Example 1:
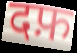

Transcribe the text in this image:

दफ़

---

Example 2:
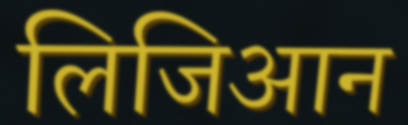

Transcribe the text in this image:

लिजिआन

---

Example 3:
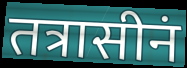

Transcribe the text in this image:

तत्रासीनं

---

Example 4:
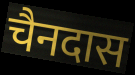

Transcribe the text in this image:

चैनदास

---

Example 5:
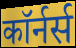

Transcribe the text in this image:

कॉर्नर्स